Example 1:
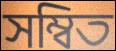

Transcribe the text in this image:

সম্বিত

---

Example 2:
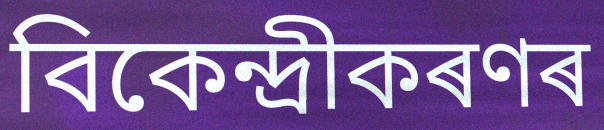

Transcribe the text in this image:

বিকেন্দ্ৰীকৰণৰ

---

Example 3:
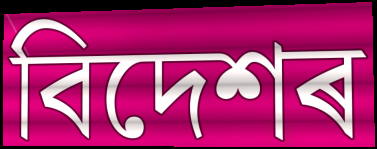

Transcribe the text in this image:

বিদেশৰ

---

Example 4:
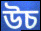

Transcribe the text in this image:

উচ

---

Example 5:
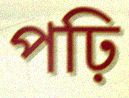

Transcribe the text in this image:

পঢ়ি